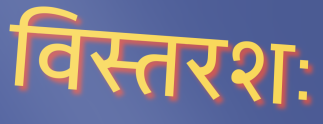
विस्तरशः